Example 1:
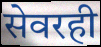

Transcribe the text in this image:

सेवरही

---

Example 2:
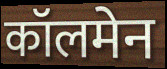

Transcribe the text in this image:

कॉलमेन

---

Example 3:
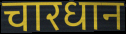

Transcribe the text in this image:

चारधान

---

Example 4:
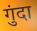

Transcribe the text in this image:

गुंदा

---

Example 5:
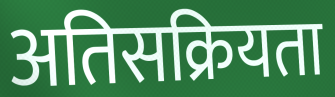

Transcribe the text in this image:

अतिसक्रियता